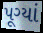
પૂગ્યાં